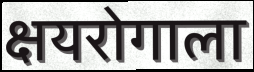
क्षयरोगाला